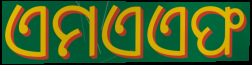
ଏମଏଏଫ